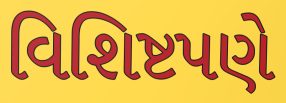
વિશિષ્ટપણે